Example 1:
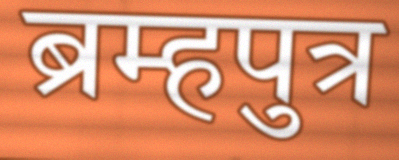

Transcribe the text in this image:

ब्रम्हपुत्र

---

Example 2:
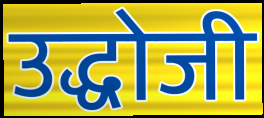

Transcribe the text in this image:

उद्धोजी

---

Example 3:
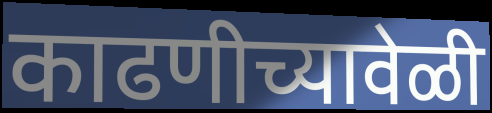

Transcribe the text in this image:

काढणीच्यावेळी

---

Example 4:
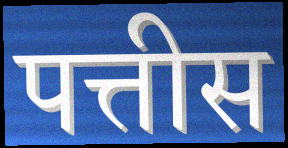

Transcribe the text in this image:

पत्तीस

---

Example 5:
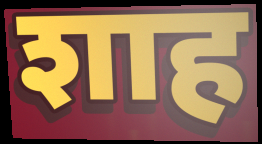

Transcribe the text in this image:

शाह